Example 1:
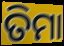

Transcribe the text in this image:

ତିମା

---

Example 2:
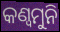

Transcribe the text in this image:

କଣ୍ୱମୁନି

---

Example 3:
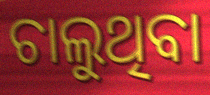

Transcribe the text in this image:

ଚାଲୁଥିବା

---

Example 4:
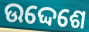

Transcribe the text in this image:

ଉଦ୍ଦେଶେ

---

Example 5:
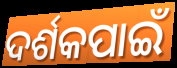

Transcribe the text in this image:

ଦର୍ଶକପାଇଁ